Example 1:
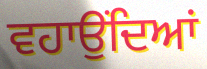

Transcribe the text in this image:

ਵਹਾਉਂਦਿਆਂ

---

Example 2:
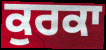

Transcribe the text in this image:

ਕੁਰਕਾ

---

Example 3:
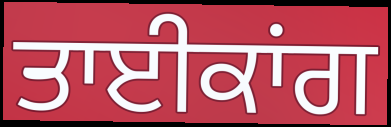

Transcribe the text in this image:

ਤਾਈਕਾਂਗ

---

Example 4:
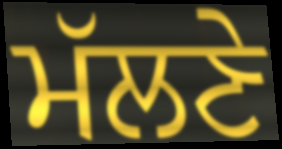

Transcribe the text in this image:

ਮੱਲਣੇ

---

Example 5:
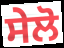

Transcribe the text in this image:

ਸੇਲੋ